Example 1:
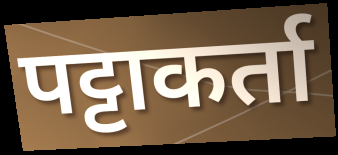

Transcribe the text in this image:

पट्टाकर्ता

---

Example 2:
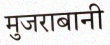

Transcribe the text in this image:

मुजराबानी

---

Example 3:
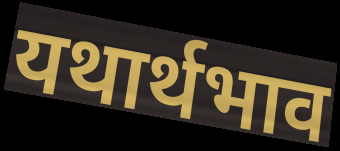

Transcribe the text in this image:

यथार्थभाव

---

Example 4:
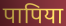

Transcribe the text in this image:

पापिया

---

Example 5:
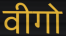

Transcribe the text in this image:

वीगो